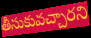
తీసుకువచ్చారని